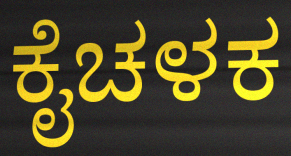
ಕೈಚಳಕ